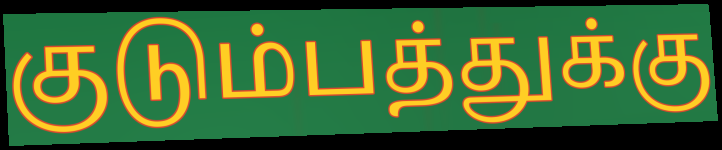
குடும்பத்துக்கு